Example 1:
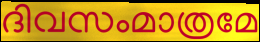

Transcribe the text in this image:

ദിവസംമാത്രമേ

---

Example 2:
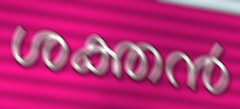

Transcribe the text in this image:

ശക്തൻ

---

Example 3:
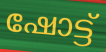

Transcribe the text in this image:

ഷോട്ട്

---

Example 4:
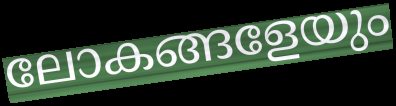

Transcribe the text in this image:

ലോകങ്ങളേയും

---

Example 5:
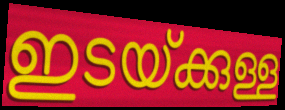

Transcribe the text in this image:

ഇടയ്‌ക്കുള്ള